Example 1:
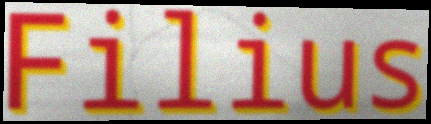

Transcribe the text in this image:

Filius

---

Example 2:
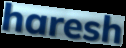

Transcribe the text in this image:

haresh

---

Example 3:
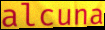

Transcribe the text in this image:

alcuna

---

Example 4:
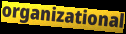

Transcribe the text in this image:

organizational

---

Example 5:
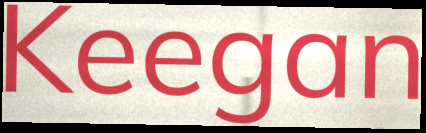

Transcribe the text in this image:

Keegan